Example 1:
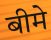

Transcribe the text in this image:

बीमे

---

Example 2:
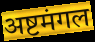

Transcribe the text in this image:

अष्टमंगल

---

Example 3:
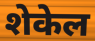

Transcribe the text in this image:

शेकेल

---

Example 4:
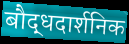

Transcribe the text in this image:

बौद्धदार्शनिक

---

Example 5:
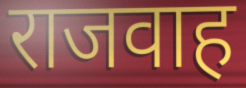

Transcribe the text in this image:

राजवाह